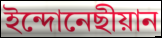
ইন্দোনেছীয়ান